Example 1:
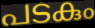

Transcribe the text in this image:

പടകും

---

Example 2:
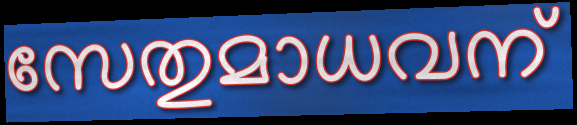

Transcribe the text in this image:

സേതുമാധവന്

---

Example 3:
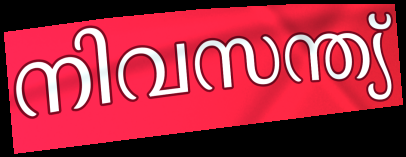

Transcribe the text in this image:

നിവസന്ത്യ്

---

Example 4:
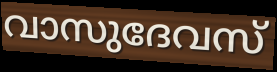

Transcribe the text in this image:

വാസുദേവസ്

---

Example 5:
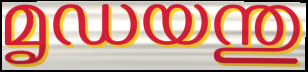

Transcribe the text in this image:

മൃഡയന്തു